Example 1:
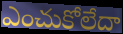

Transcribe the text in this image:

ఎంచుకోలేదా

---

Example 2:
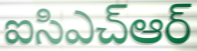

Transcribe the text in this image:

ఐసిఎచ్ఆర్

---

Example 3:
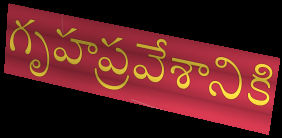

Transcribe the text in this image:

గృహప్రవేశానికి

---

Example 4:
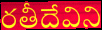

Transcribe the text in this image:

రతీదేవిని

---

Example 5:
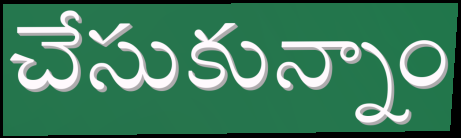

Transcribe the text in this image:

చేసుకున్నాం